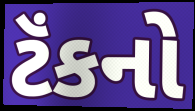
ટૅંકનો